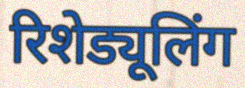
रिशेड्यूलिंग